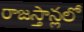
రాజస్తాన్లలో